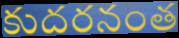
కుదరనంత